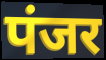
पंजर